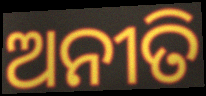
ଅନୀତି